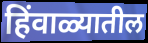
हिंवाळ्यातील